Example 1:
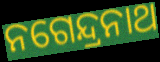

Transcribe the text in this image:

ନଗେନ୍ଦ୍ରନାଥ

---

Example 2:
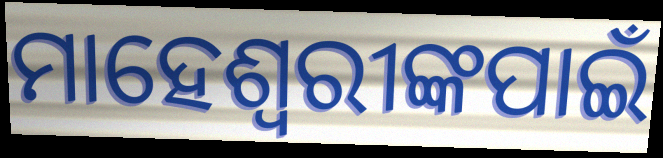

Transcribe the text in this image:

ମାହେଶ୍ୱରୀଙ୍କପାଇଁ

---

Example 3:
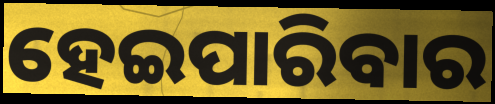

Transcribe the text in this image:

ହେଇପାରିବାର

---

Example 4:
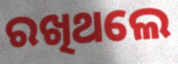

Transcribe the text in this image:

ରଖିଥଲେ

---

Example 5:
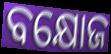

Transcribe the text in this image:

ବକ୍ଷୋଜ